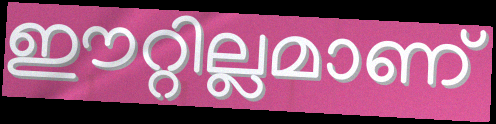
ഈറ്റില്ലമാണ്